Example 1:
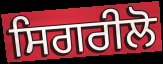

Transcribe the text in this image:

ਸਿਗਰੀਲੋ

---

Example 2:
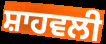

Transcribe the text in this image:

ਸ਼ਾਹਵਲੀ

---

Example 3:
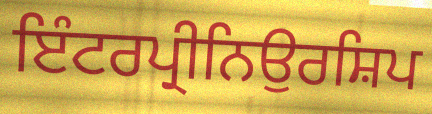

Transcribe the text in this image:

ਇੰਟਰਪ੍ਰੀਨਿਉਰਸ਼ਿਪ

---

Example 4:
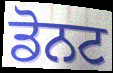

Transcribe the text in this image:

ਡੋਨਟ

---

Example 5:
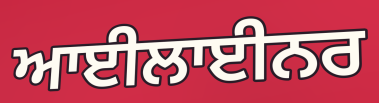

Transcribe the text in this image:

ਆਈਲਾਈਨਰ